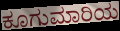
ಕೂಗುಮಾರಿಯ